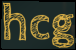
hcg